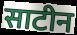
साटीन